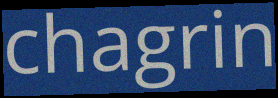
chagrin